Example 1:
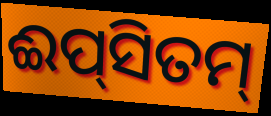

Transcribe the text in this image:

ଈପ୍‌ସିତମ୍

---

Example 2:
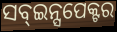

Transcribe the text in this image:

ସବ୍ଇନ୍ସପେକ୍ଟର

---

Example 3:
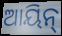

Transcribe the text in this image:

ଆୟିନ୍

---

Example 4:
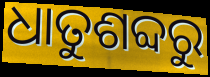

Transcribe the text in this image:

ଧାତୁଶବ୍ଦରୁ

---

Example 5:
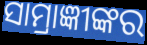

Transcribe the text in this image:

ସାମ୍ରାଜ୍ଞୀଙ୍କର